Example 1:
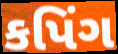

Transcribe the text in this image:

કપિંગ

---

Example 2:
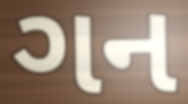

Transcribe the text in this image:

ગન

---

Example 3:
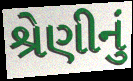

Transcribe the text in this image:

શ્રેણીનું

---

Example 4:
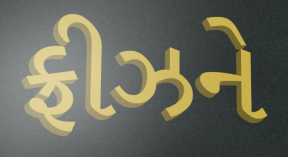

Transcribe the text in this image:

ફ્રીઝને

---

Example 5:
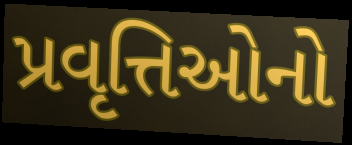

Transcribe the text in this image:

પ્રવૃત્તિઓનો